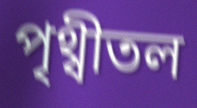
পৃথ্বীতল